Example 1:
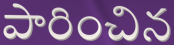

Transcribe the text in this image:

పారించిన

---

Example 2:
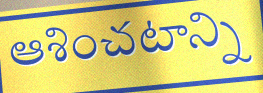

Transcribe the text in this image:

ఆశించటాన్ని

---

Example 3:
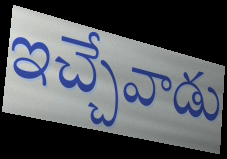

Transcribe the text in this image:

ఇచ్చేవాడు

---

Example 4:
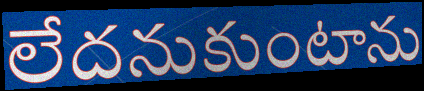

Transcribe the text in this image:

లేదనుకుంటాను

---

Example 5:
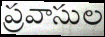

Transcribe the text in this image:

ప్రవాసుల